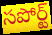
సపోర్ట్